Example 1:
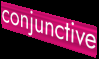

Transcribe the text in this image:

conjunctive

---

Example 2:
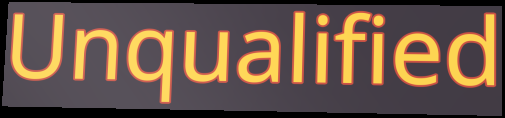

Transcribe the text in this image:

Unqualified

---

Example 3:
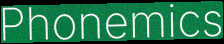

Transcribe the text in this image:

Phonemics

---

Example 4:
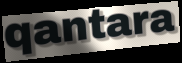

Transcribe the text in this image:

qantara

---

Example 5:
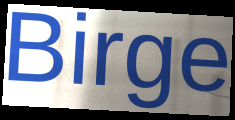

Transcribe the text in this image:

Birge